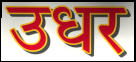
उधर